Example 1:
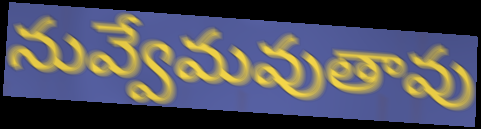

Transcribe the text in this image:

నువ్వేమవుతావు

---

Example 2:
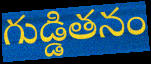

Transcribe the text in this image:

గుడ్డితనం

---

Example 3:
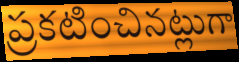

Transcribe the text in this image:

ప్రకటించినట్లుగా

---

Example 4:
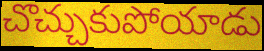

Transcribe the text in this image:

చొచ్చుకుపోయాడు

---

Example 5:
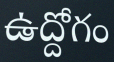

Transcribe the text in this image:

ఉద్దోగం